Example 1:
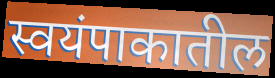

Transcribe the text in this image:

स्वयंपाकातील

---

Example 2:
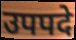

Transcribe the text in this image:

उपपदे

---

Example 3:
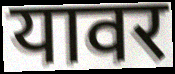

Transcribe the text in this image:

यावर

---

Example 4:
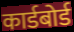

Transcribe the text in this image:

कार्डबोर्ड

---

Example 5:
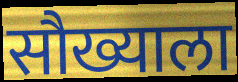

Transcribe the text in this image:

सौख्याला